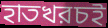
হাতখরচই